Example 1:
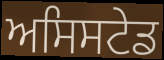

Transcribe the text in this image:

ਅਸਿਸਟੇਡ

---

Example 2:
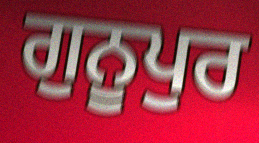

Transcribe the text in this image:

ਗੁਨੂਪੁਰ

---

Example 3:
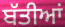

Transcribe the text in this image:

ਬੱਤੀਆਂ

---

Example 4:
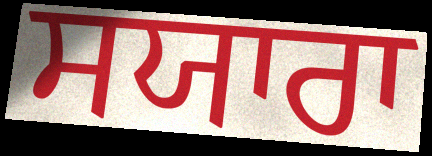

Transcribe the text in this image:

ਸਯਾਰਾ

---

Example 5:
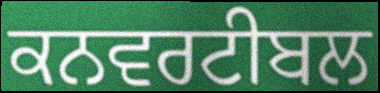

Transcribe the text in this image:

ਕਨਵਰਟੀਬਲ